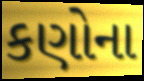
કણોના